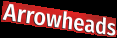
Arrowheads